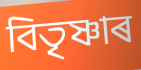
বিতৃষ্ণাৰ